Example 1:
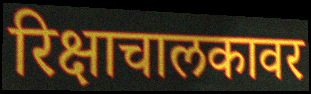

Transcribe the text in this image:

रिक्षाचालकावर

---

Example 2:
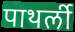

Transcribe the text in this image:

पाथर्ली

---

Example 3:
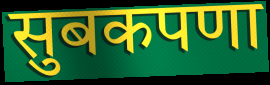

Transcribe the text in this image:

सुबकपणा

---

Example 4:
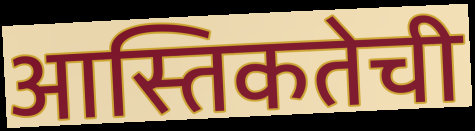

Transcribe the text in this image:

आस्तिकतेची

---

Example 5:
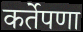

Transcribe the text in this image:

कर्तेपणा